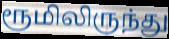
ரூமிலிருந்து